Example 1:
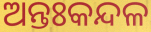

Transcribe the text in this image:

ଅନ୍ତଃକନ୍ଦଳ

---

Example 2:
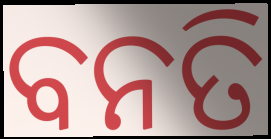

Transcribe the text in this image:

ବନତି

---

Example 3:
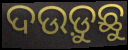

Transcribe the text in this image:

ଦଉଡ଼ୁଛୁ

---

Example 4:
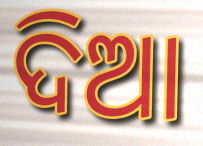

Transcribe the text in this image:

ଦିଆ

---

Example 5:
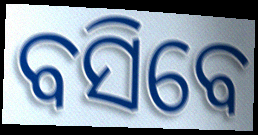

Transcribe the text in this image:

ବସିବେ